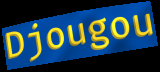
Djougou